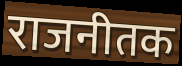
राजनीतक